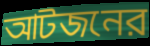
আটজনের